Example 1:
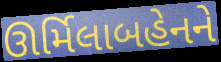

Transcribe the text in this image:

ઊર્મિલાબહેનને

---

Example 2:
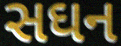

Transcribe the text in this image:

સઘન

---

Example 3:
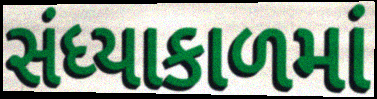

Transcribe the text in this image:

સંધ્યાકાળમાં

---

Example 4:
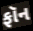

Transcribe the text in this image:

ફૉન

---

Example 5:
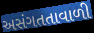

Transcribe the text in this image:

અસંગતતાવાળી